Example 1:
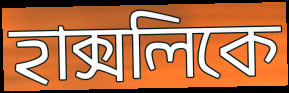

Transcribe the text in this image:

হাক্সলিকে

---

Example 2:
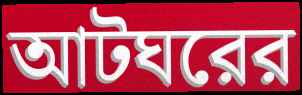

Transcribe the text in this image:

আটঘরের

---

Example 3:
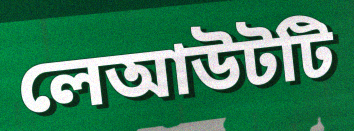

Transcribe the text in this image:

লেআউটটি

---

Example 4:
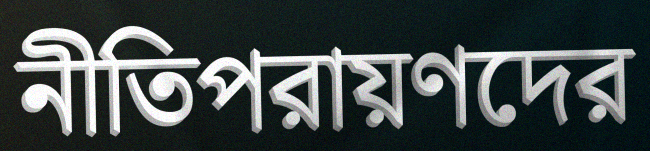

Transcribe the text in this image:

নীতিপরায়ণদের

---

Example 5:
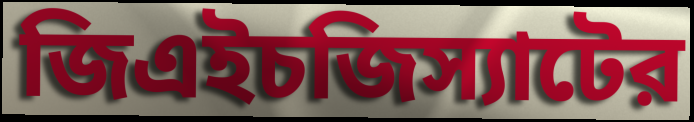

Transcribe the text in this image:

জিএইচজিস্যাটের